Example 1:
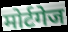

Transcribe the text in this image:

मोर्टगेज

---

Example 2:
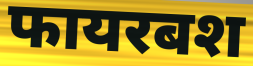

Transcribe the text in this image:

फायरबश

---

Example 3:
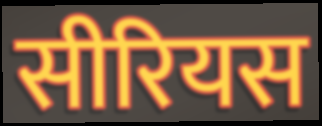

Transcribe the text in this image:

सीरियस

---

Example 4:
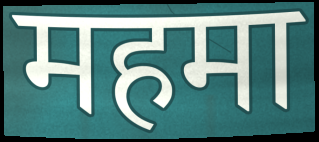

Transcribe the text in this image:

महमा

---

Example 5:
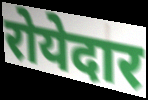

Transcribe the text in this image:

रोयेदार